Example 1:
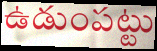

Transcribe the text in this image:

ఉడుంపట్టు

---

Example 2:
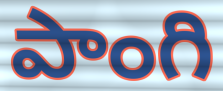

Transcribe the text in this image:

పాంగి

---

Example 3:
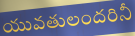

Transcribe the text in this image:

యువతులందరినీ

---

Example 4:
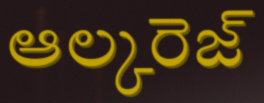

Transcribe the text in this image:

ఆల్కరెజ్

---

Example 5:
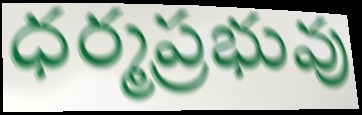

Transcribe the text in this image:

ధర్మప్రభువు